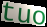
tuo